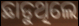
ଛାଡୁଥିଲେ